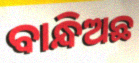
ବାନ୍ଧିଅଛ